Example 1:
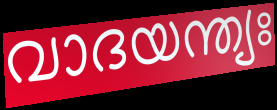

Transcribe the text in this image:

വാദയന്ത്യഃ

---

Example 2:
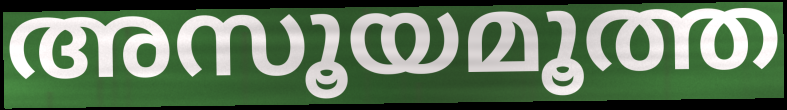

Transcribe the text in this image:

അസൂയമൂത്ത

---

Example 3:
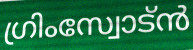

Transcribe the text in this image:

ഗ്രിംസ്വോട്ൻ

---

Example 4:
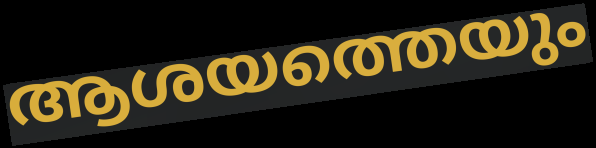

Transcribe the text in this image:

ആശയത്തെയും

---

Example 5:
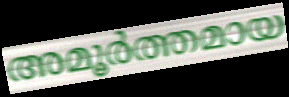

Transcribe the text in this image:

അമൂർത്തമായ